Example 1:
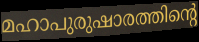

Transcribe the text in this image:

മഹാപുരുഷാരത്തിന്റെ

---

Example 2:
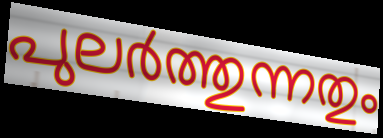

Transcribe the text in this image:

പുലർത്തുന്നതും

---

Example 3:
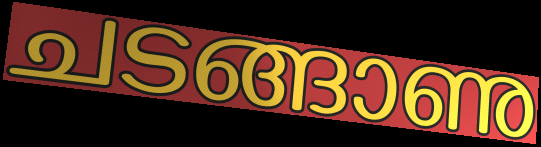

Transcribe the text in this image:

ചടങ്ങാണു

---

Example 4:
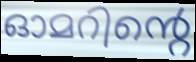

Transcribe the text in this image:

ഓമറിന്റെ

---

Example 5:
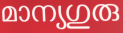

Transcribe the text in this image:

മാന്യഗുരു